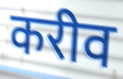
करीव